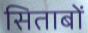
सिताबों